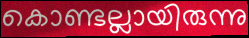
കൊണ്ടല്ലായിരുന്നു